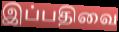
இப்பதிவை